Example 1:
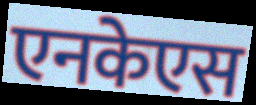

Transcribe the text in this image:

एनकेएस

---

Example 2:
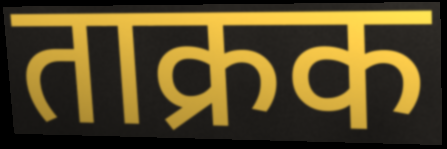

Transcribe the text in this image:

ताक्रक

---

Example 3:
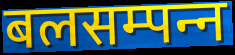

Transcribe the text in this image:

बलसम्पन्न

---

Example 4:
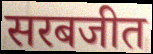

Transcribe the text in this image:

सरबजीत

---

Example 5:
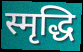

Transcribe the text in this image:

स्मृद्धि